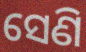
ସେଣି